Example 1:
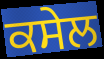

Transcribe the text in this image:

ਕਸੇਲ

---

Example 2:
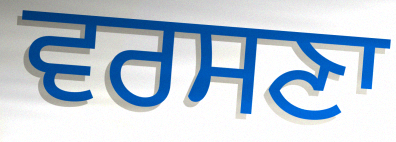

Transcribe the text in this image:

ਵਰਸਣਾ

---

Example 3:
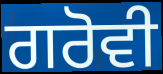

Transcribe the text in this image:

ਗਰੋਵੀ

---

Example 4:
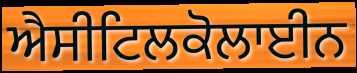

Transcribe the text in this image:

ਐਸੀਟਿਲਕੋਲਾਈਨ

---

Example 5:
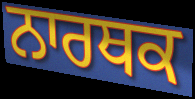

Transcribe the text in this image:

ਨਾਰਥਕ